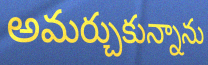
అమర్చుకున్నాను